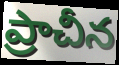
ప్రాచీన